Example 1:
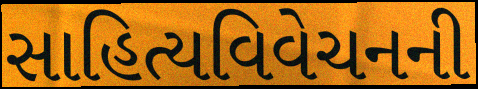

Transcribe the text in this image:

સાહિત્યવિવેચનની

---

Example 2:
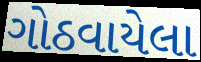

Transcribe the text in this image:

ગોઠવાયેલા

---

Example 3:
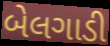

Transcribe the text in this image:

બેલગાડી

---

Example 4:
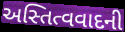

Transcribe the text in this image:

અસ્તિત્વવાદની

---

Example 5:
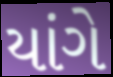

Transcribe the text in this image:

યાંગે